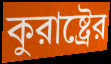
কুরাষ্ট্রের